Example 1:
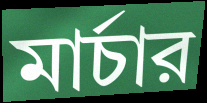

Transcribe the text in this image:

মার্চার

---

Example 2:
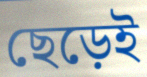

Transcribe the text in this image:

ছেড়েই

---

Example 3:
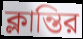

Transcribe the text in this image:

ক্লান্তির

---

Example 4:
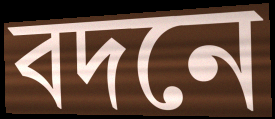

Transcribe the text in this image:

বদনে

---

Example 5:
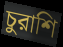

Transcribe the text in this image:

চুরাশি